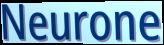
Neurone